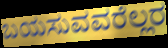
ಬಯಸುವವರೆಲ್ಲರ